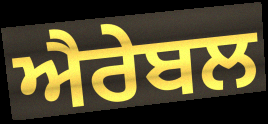
ਐਰੇਬਲ